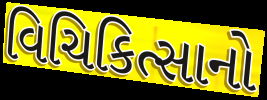
વિચિકિત્સાનો